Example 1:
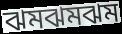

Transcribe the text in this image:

ঝমঝমঝম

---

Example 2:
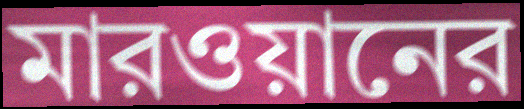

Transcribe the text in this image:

মারওয়ানের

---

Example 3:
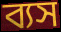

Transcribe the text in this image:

ব্যস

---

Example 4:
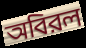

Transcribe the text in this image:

অবিরল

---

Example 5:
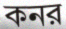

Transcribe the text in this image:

কনর